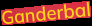
Ganderbal